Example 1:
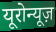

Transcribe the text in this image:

यूरोन्यूज़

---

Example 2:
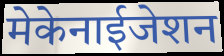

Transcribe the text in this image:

मेकेनाईजेशन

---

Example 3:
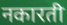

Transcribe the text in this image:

नकारती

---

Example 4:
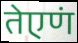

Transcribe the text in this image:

तेएणं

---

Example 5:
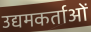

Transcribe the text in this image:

उद्यमकर्ताओं